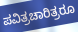
ಪವಿತ್ರಚಾರಿತ್ರರೂ